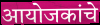
आयोजकांचे